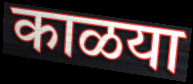
काळया